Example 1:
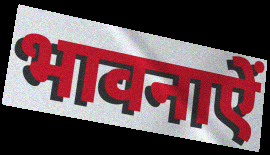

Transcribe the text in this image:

भावनाऐं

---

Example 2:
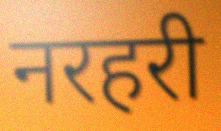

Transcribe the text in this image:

नरहरी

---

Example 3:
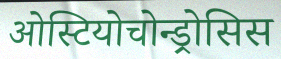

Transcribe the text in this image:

ओस्टियोचोन्ड्रोसिस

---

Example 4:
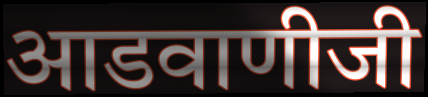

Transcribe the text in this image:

आडवाणीजी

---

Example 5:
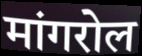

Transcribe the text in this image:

मांगरोल